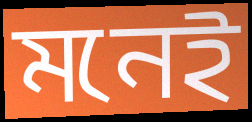
মনেই